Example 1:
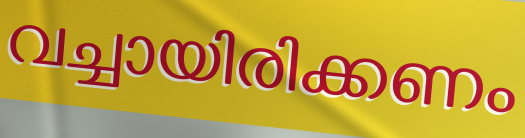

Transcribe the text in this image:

വച്ചായിരിക്കണം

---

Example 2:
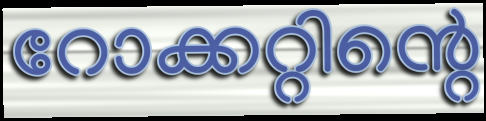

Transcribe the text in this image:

റോക്കറ്റിന്റെ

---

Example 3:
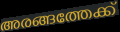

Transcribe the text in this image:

അരങ്ങത്തേക്ക്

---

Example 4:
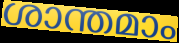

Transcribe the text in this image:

ശാന്തമാം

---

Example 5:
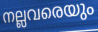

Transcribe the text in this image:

നല്ലവരെയും